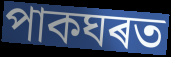
পাকঘৰত